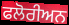
ਫਲੋਰੀਅਨ